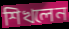
শিখলেন